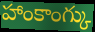
హాంకాంగ్కు